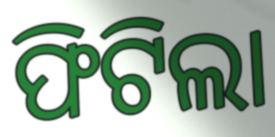
ଫିଟିଲା